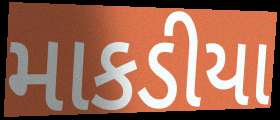
માકડીયા